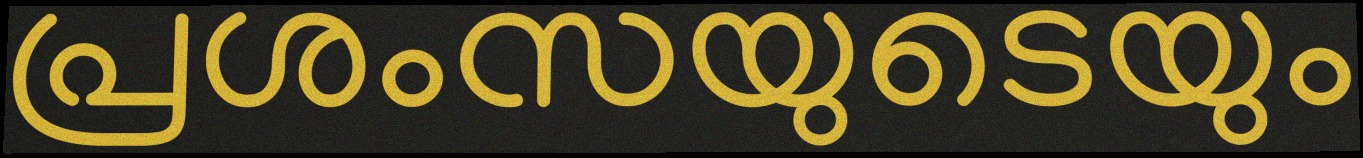
പ്രശംസയുടെയും